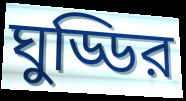
ঘুড্ডির